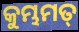
କୁମ୍ଭମତ୍